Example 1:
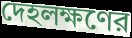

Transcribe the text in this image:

দেহলক্ষণের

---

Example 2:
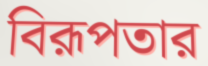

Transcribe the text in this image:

বিরূপতার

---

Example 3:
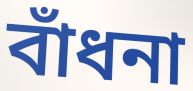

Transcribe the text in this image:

বাঁধনা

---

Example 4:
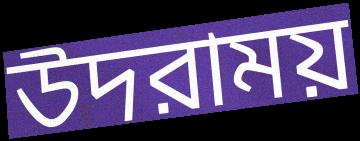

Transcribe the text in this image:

উদরাময়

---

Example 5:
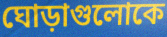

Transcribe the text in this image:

ঘোড়াগুলোকে